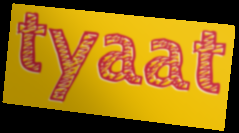
tyaat